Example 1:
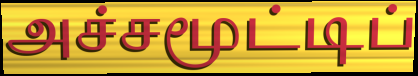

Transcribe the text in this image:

அச்சமூட்டிப்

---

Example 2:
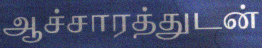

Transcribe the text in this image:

ஆச்சாரத்துடன்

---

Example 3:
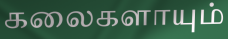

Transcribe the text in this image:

கலைகளாயும்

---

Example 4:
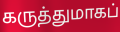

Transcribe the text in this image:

கருத்துமாகப்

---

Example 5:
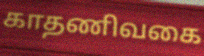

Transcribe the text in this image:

காதணிவகை